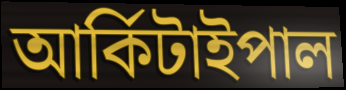
আৰ্কিটাইপাল